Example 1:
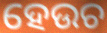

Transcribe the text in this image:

ହେଉଚ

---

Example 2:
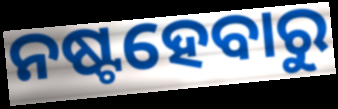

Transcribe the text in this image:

ନଷ୍ଟହେବାରୁ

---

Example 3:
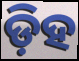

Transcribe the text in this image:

ଡ଼ିହ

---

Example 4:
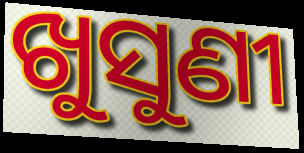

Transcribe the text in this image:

ଖୁସୁଣୀ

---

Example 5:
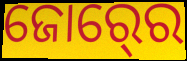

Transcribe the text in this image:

ଜୋର୍‍ରେ